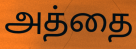
அத்தை